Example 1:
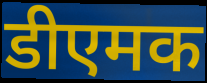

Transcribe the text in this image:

डीएमक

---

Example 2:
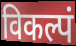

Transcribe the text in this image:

विकल्पं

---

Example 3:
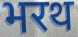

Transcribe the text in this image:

भरथ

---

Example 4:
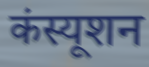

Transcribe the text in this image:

कंस्यूशन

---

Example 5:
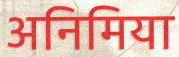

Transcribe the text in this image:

अनिमिया